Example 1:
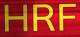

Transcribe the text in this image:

HRF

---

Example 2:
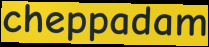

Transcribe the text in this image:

cheppadam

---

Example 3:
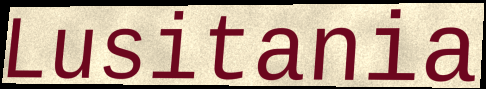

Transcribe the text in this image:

Lusitania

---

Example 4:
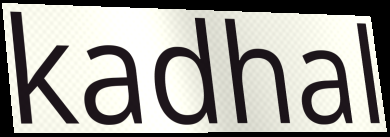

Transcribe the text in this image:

kadhal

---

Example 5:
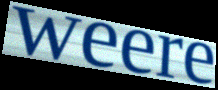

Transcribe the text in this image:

weere